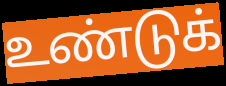
உண்டுக்